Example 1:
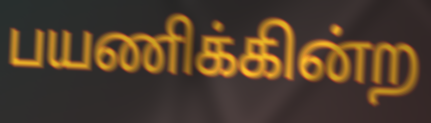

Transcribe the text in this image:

பயணிக்கின்ற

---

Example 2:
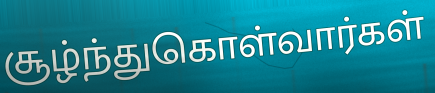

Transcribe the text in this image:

சூழ்ந்துகொள்வார்கள்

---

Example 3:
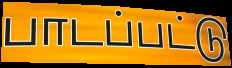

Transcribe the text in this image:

பாடப்பட்டு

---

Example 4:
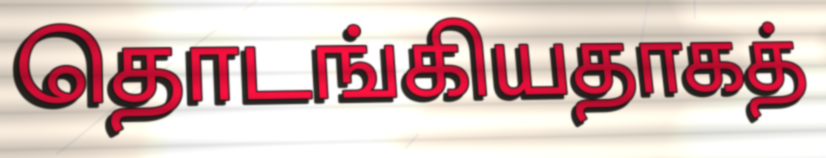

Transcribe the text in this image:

தொடங்கியதாகத்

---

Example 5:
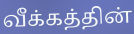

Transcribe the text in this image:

வீக்கத்தின்